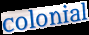
colonial